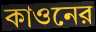
কাওনের